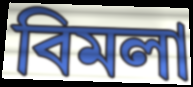
বিমলা